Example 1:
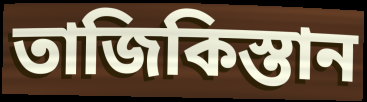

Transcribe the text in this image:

তাজিকিস্তান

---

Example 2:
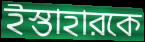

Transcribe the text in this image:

ইস্তাহারকে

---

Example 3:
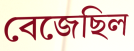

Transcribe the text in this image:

বেজেছিল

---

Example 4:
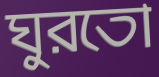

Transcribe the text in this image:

ঘুরতো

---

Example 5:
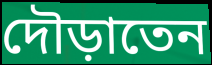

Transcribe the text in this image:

দৌড়াতেন